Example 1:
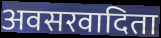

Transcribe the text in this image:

अवसरवादिता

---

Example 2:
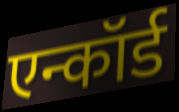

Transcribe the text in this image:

एन्कॉर्ड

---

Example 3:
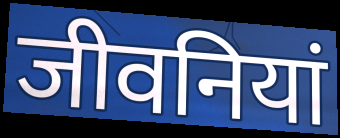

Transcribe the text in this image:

जीवनियां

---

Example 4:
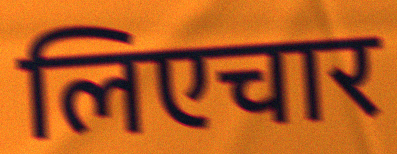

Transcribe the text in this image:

लिएचार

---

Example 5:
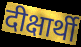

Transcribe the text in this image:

दीक्षार्थी